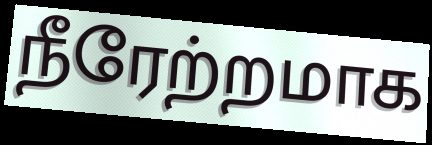
நீரேற்றமாக